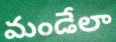
మండేలా